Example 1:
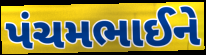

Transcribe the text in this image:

પંચમભાઈને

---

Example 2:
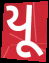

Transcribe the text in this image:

યૂ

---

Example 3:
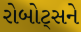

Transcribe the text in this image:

રોબોટ્સને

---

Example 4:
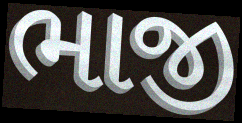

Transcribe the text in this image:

ભાજી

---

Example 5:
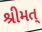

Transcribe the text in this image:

શ્રીમત્